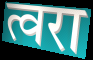
त्वरा